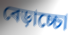
বেড়াচ্চো